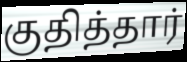
குதித்தார்